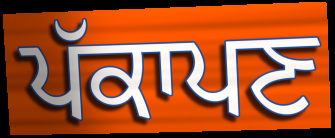
ਪੱਕਾਪਣ